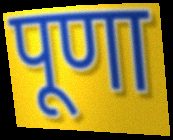
पूणा